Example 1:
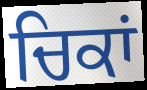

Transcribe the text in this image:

ਚਿਕਾਂ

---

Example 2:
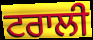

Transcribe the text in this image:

ਟਰਾਲੀ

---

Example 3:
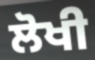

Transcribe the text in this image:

ਲੋਖੀ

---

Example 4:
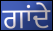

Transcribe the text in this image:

ਗਾਂਦੇ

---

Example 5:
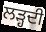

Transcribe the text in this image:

ਲੜ੍ਹਦੀ